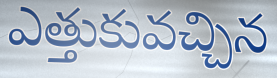
ఎత్తుకువచ్చిన